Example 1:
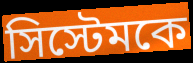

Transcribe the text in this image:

সিস্টেমকে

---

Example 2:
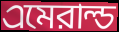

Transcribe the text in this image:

এমেরাল্ড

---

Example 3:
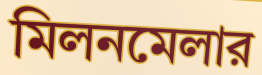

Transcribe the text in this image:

মিলনমেলার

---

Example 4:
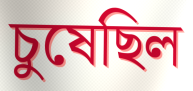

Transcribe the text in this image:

চুষেছিল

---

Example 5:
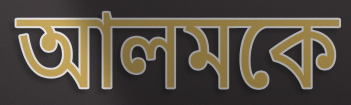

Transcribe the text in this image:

আলমকে